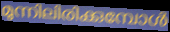
മുന്നിലിരിക്കുമ്പോൾ